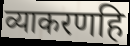
व्याकरणहि